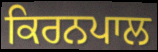
ਕਿਰਨਪਾਲ